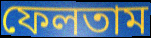
ফেলতাম